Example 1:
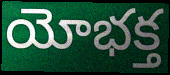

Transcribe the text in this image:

యోభక్త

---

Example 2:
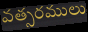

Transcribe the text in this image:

వత్సరములు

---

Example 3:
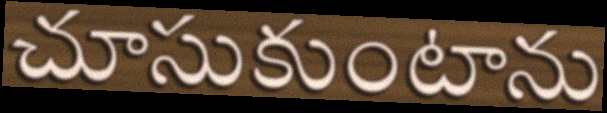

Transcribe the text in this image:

చూసుకుంటాను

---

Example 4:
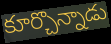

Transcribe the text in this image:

కూర్చొన్నాడు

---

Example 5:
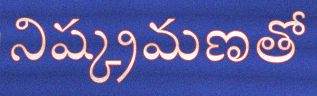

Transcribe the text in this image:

నిష్క్రమణతో